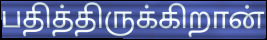
பதித்திருக்கிறான்